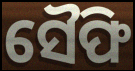
ସୈଫି